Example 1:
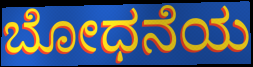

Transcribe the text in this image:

ಬೋಧನೆಯ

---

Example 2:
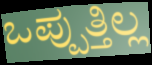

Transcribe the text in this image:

ಒಪ್ಪುತ್ತಿಲ್ಲ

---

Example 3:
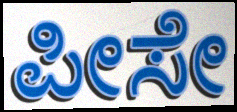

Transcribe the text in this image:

ಪೀಸೇ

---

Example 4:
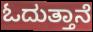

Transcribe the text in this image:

ಓದುತ್ತಾನೆ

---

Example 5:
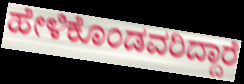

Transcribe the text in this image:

ಹೇಳಿಕೊಂಡವರಿದ್ದಾರೆ